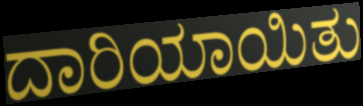
ದಾರಿಯಾಯಿತು